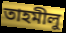
তাহমীলু